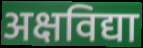
अक्षविद्या